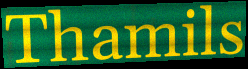
Thamils